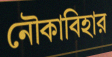
নৌকাবিহার